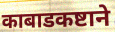
काबाडकष्टाने